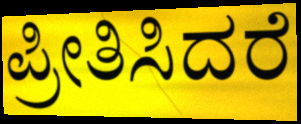
ಪ್ರೀತಿಸಿದರೆ